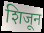
शिजून